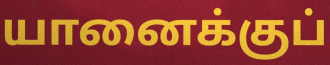
யானைக்குப்